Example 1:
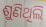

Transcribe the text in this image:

ଶୁଣିଥିଲି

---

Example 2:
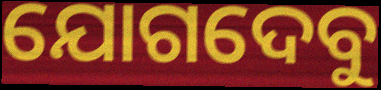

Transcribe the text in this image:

ଯୋଗଦେବୁ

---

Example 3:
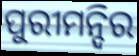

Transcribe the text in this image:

ପୁରୀମନ୍ଦିର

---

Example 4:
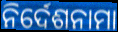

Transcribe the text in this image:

ନିର୍ଦେଶନାମା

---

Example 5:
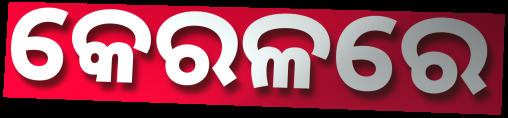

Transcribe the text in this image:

କେରଳରେ